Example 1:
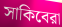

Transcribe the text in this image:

সাকিবেরা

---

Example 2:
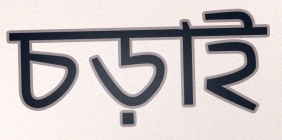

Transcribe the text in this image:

চড়াই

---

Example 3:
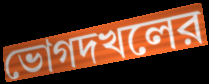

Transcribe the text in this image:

ভোগদখলের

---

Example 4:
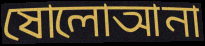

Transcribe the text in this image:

ষোলোআনা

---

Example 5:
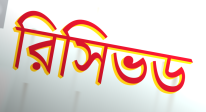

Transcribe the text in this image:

রিসিভড